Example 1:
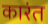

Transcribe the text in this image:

कारंत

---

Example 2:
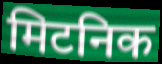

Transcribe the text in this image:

मिटनिक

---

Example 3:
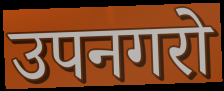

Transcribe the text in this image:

उपनगरो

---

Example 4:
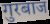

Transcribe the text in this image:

गुरबाज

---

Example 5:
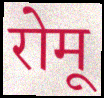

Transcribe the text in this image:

रोमू